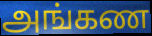
அங்கண